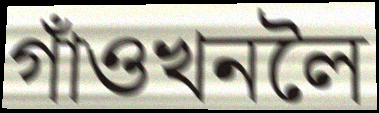
গাঁওখনলৈ